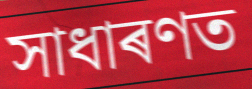
সাধাৰণত